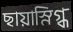
ছায়াস্নিগ্ধ